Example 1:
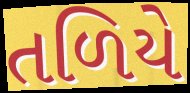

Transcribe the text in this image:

તળિયે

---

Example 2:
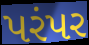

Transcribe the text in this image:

પરંપર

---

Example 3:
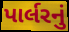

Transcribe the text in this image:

પાર્લરનું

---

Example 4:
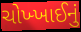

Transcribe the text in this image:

ચોખ્ખાઈનું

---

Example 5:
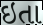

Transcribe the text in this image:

ઇતા